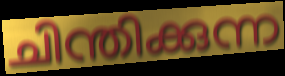
ചിന്തിക്കുന്ന